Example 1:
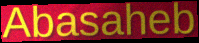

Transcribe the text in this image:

Abasaheb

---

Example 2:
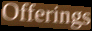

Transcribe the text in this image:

Offerings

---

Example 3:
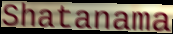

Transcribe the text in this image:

Shatanama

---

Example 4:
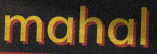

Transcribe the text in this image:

mahal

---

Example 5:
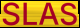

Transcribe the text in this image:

SLAS